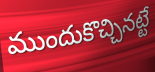
ముందుకొచ్చినట్టే